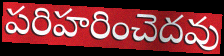
పరిహరించెదవు